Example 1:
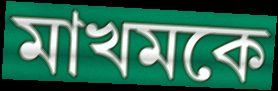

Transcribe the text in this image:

মাখমকে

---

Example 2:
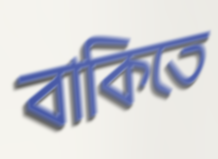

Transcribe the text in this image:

বাকিতে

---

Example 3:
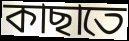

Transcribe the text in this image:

কাছাতে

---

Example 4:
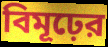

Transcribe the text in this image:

বিমূঢ়ের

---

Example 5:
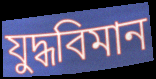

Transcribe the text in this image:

যুদ্ধবিমান